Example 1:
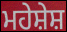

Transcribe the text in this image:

ਮਹੇਸ਼ੇਸ਼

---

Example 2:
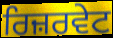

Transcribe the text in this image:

ਰਿਜ਼ਰਵੇਟ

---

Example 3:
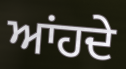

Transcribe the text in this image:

ਆਂਹਦੇ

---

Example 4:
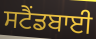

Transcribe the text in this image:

ਸਟੈਂਡਬਾਈ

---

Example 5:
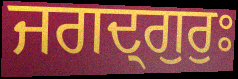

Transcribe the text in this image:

ਜਗਦ੍ਗੁਰੁਃ